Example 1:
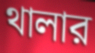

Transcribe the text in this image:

থালার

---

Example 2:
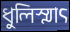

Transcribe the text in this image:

ধুলিস্মাৎ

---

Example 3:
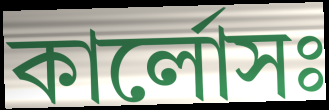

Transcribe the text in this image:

কার্লোসঃ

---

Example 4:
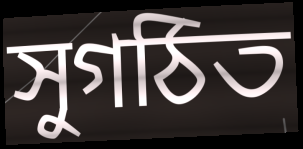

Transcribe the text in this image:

সুগঠিত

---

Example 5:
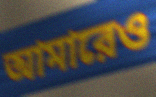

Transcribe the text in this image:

আমারেও